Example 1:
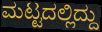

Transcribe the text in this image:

ಮಟ್ಟದಲ್ಲಿದ್ದು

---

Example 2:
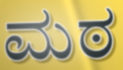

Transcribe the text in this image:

ಮಠ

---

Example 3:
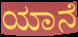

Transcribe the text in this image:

ಯಾನೆ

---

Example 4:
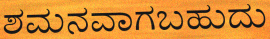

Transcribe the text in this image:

ಶಮನವಾಗಬಹುದು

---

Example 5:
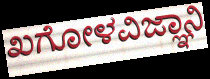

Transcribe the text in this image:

ಖಗೋಳವಿಜ್ಞಾನಿ